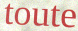
toute